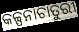
କଳ୍ପନାଚାତୁରୀ